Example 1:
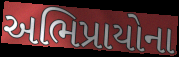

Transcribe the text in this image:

અભિપ્રાયોના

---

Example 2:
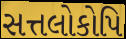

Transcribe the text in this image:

સત્તલોકોપિ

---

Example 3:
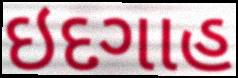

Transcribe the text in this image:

ઇદગાહ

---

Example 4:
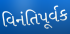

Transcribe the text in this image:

વિનંતિપૂર્વક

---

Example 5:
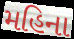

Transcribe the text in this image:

મહિના